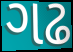
ગઢ